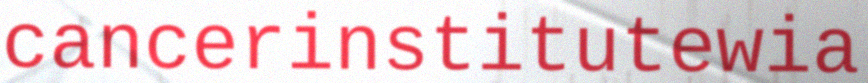
cancerinstitutewia